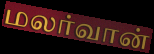
மலர்வான்